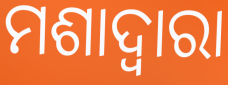
ମଶାଦ୍ୱାରା